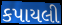
કપાયલી